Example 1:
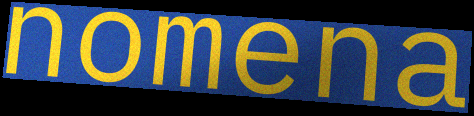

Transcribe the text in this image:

nomena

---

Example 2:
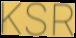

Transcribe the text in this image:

KSR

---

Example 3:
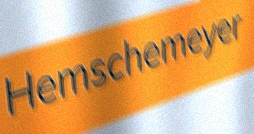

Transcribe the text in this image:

Hemschemeyer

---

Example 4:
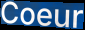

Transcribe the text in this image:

Coeur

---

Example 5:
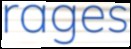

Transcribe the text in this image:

rages